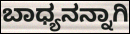
ಬಾಧ್ಯನನ್ನಾಗಿ